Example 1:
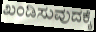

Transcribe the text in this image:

ಖಂಡಿಸುವುದಕ್ಕೆ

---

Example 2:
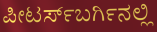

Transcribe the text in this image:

ಪೀಟರ್ಸ್‍ಬರ್ಗಿನಲ್ಲಿ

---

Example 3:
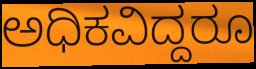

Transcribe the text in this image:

ಅಧಿಕವಿದ್ದರೂ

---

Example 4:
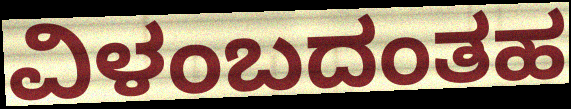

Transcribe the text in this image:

ವಿಳಂಬದಂತಹ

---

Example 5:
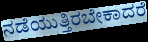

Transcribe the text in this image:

ನಡೆಯುತ್ತಿರಬೇಕಾದರೆ